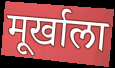
मूर्खाला